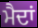
ਮੈਦਾਂ